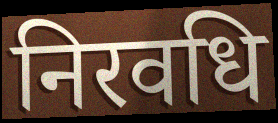
निरवधि